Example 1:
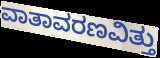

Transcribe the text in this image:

ವಾತಾವರಣವಿತ್ತು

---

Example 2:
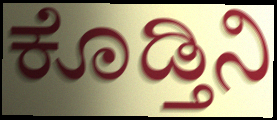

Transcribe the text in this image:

ಕೊಡ್ತಿನಿ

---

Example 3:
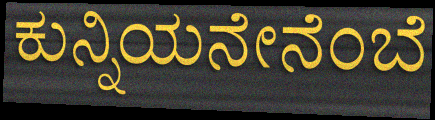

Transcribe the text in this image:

ಕುನ್ನಿಯನೇನೆಂಬೆ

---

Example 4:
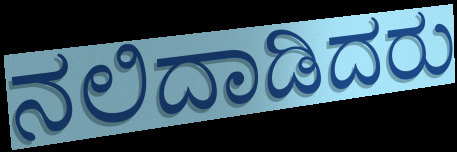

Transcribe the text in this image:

ನಲಿದಾಡಿದರು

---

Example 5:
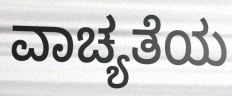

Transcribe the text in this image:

ವಾಚ್ಯತೆಯ